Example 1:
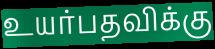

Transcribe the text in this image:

உயர்பதவிக்கு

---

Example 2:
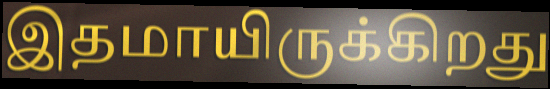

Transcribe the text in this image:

இதமாயிருக்கிறது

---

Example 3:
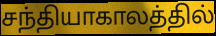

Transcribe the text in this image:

சந்தியாகாலத்தில்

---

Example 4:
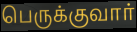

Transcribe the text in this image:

பெருக்குவார்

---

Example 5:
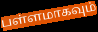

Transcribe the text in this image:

பள்ளமாகவும்